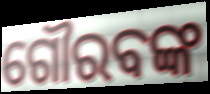
ଗୌରବଙ୍କ